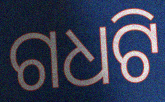
ଗଧଟି